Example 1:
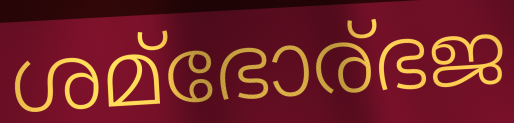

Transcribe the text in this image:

ശമ്ഭോര്ഭജ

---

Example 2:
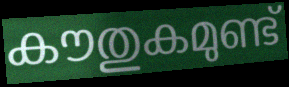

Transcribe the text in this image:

കൗതുകമുണ്ട്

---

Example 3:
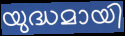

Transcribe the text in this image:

യുദ്ധമായി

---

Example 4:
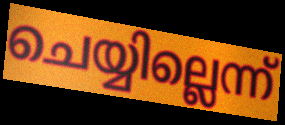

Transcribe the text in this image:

ചെയ്യില്ലെന്ന്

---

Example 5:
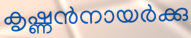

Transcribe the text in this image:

കൃഷ്ണൻനായർക്കു